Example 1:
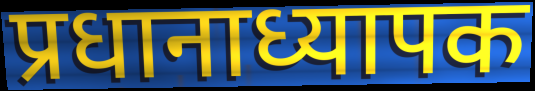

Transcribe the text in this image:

प्रधानाध्यापक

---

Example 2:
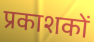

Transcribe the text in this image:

प्रकाशकों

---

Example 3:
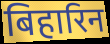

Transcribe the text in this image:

बिहारिन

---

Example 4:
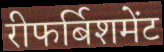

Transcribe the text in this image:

रीफर्बिशमेंट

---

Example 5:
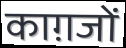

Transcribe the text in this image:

काग़जों